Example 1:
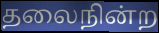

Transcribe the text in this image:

தலைநின்ற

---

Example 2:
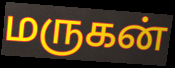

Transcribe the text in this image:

மருகன்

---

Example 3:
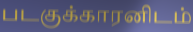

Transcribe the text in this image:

படகுக்காரனிடம்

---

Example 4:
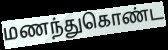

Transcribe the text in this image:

மணந்துகொண்ட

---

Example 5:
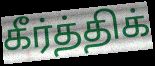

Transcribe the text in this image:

கீர்த்திக்